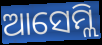
ଆସେମ୍ଲି